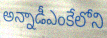
అన్నాడీఎంకేలోని